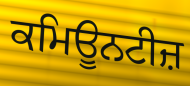
ਕਮਿਊਨਟੀਜ਼